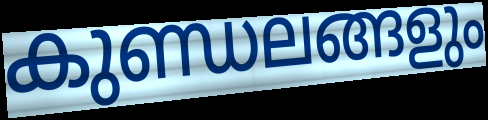
കുണ്ഡലങ്ങളും